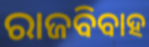
ରାଜବିବାହ